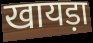
खायड़ा